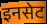
इनसेट